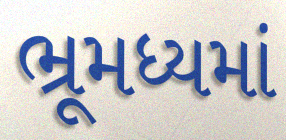
ભ્રૂમધ્યમાં